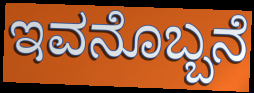
ಇವನೊಬ್ಬನೆ